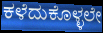
ಕಳೆದುಕೊಳ್ಳಲೇ